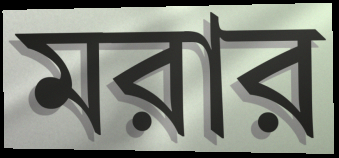
মরার